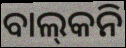
ବାଲ୍‍କନି